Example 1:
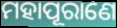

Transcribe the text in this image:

ମହାପୂରାଣେ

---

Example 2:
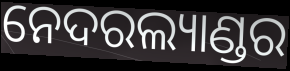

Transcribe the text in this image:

ନେଦରଲ୍ୟାଣ୍ଡର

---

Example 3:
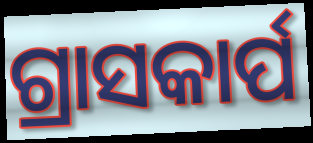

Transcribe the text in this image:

ଗ୍ରାସକାର୍ପ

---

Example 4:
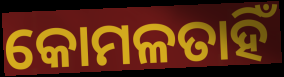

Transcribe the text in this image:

କୋମଳତାହିଁ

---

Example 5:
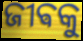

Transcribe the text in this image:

ଜୀଵକୁ